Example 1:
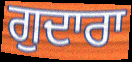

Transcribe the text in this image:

ਗੁਦਾਰਾ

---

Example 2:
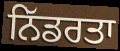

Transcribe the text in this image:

ਨਿੱਡਰਤਾ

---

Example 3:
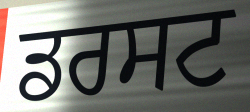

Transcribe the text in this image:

ਡਰਸਟ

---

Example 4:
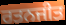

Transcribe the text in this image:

ਰਤਨਜੀਤ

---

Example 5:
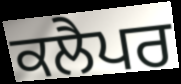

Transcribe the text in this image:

ਕਲੈਪਰ